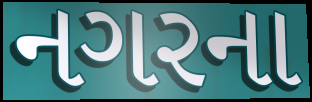
નગરના